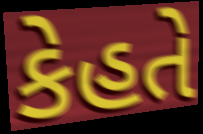
કેહતે